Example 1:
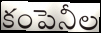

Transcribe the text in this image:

కంపెనీల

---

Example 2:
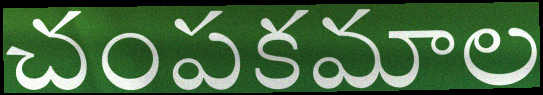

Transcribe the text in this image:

చంపకమాల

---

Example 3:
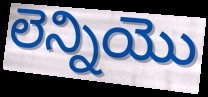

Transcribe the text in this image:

లెన్నియొ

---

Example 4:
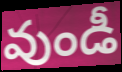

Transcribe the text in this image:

వుండీ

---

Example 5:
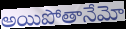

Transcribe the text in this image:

అయిపోతానేమో